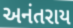
અનંતરાય